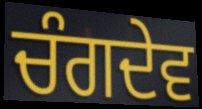
ਚੰਗਦੇਵ